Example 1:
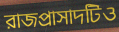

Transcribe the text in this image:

রাজপ্রাসাদটিও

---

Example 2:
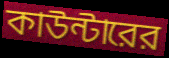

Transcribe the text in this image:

কাউন্টারের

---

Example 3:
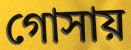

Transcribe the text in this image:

গোসায়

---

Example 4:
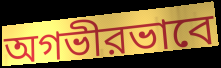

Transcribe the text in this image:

অগভীরভাবে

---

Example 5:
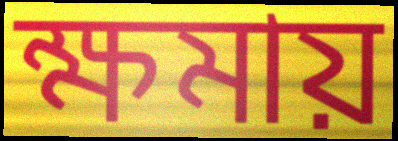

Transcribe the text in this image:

ক্ষমায়